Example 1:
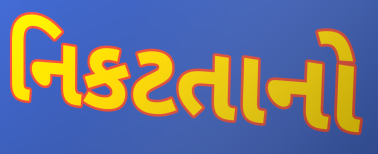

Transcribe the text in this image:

નિકટતાનો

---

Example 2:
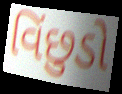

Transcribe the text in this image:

વિંછુડો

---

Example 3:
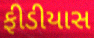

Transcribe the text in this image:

ફીડીયાસ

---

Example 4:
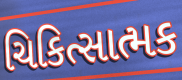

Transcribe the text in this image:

ચિકિત્સાત્મક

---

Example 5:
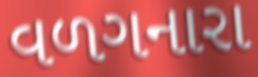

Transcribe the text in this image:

વળગનારા